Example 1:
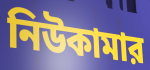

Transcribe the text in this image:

নিউকামার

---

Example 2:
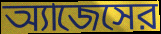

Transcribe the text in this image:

অ্যাজেসের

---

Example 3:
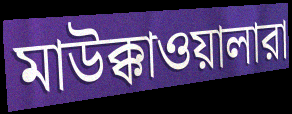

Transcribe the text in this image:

মাউক্কাওয়ালারা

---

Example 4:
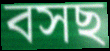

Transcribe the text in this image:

বসছ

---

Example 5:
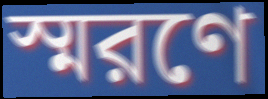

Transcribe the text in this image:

স্মরণে